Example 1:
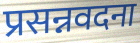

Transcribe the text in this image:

प्रसन्नवदना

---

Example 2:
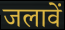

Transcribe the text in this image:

जलावें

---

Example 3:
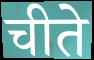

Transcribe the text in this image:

चीते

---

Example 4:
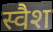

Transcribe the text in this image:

स्वैश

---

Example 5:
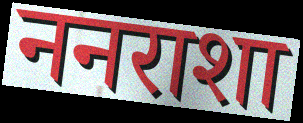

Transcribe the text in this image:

ननराशा